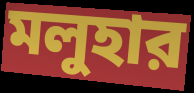
মলুহার